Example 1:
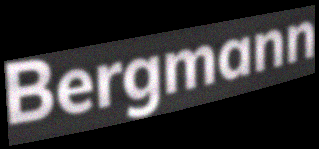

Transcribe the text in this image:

Bergmann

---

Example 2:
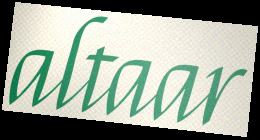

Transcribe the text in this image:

altaar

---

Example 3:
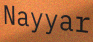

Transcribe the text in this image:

Nayyar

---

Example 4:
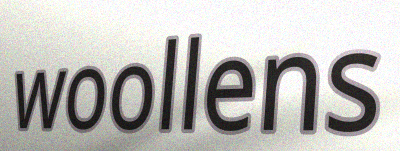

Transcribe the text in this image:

woollens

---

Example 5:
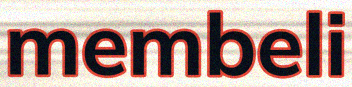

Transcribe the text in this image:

membeli